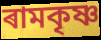
ৰামকৃষ্ণ